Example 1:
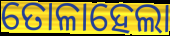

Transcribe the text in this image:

ତୋଳାହେଲା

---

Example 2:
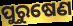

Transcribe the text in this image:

ପୁରୁଷେଣ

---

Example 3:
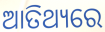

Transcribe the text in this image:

ଆତିଥ୍ୟରେ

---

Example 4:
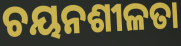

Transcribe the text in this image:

ଚୟନଶୀଳତା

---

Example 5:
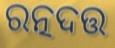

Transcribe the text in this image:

ରତ୍ନଦତ୍ତ